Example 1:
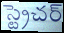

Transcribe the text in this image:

స్ట్రెచర్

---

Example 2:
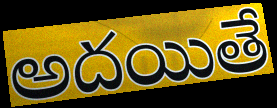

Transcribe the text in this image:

అదయితే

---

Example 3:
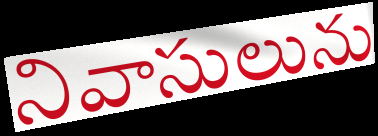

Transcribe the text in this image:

నివాసులును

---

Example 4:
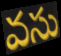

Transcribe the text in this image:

వసు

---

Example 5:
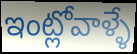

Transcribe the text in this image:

ఇంట్లోవాళ్ళే